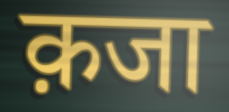
क़जा